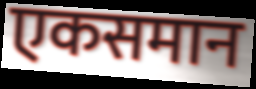
एकसमान